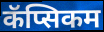
कॅप्सिकम